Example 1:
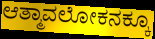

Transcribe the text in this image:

ಆತ್ಮಾವಲೋಕನಕ್ಕೂ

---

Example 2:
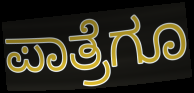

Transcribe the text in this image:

ಪಾತ್ರೆಗೂ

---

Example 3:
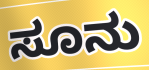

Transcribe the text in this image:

ಸೂನು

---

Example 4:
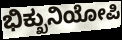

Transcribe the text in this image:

ಭಿಕ್ಖುನಿಯೋಪಿ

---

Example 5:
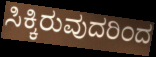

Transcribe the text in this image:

ಸಿಕ್ಕಿರುವುದರಿಂದ